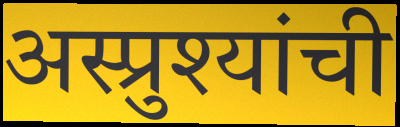
अस्प्रुश्यांची